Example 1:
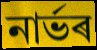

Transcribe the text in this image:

নাৰ্ভৰ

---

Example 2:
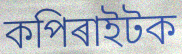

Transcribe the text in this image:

কপিৰাইটক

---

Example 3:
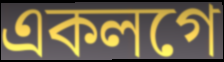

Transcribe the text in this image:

একলগে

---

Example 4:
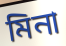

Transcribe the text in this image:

মিনা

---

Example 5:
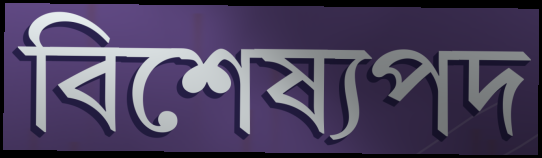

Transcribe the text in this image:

বিশেষ্যপদ